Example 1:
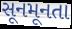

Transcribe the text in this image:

સૂનમૂનતા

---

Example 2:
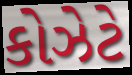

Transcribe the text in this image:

કોઝેટે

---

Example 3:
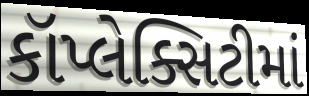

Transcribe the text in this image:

કૉપ્લેક્સિટીમાં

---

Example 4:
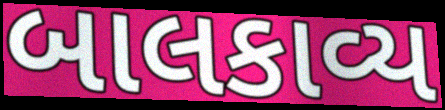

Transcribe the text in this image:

બાલકાવ્ય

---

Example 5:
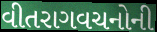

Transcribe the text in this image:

વીતરાગવચનોની